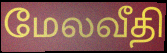
மேலவீதி